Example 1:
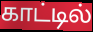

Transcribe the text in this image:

காட்டில்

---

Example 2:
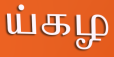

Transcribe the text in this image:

ய்கழ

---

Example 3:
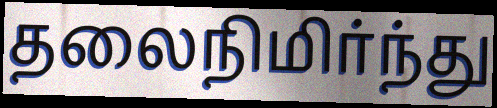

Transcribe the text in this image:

தலைநிமிர்ந்து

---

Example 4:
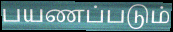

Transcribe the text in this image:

பயணப்படும்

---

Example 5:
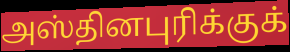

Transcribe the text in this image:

அஸ்தினபுரிக்குக்